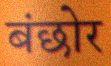
बंछोर